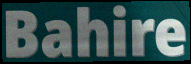
Bahire